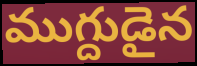
ముగ్దుడైన